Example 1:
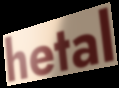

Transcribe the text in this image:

hetal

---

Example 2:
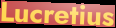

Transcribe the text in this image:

Lucretius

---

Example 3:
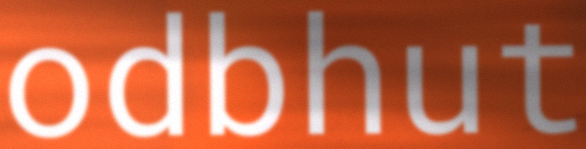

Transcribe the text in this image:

odbhut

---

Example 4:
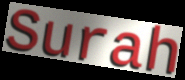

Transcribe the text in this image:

Surah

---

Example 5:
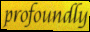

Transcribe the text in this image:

profoundly